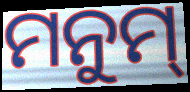
ମନୁମ୍